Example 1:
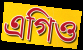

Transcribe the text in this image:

এগিও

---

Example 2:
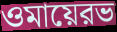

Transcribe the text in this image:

ওমায়েরভ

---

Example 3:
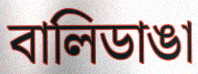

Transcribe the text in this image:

বালিডাঙা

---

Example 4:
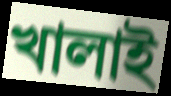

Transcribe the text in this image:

খালাই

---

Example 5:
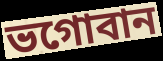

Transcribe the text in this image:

ভগোবান